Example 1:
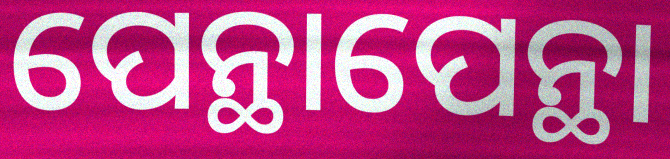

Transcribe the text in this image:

ପେନ୍ଥାପେନ୍ଥା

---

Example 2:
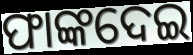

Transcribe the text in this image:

ଫାଙ୍କଦେଇ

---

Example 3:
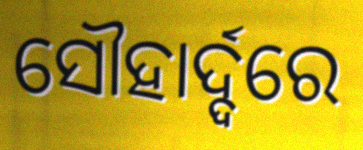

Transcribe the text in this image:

ସୌହାର୍ଦ୍ଦରେ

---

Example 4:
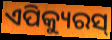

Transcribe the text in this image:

ଏପିକ୍ୟୁରସ୍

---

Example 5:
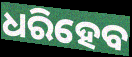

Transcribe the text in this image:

ଧରିହେବ